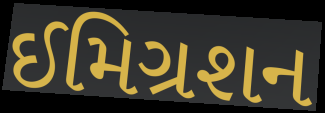
ઈમિગ્રશન